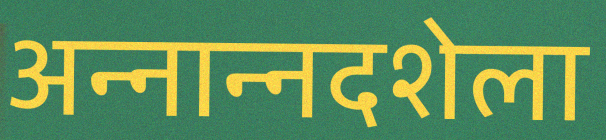
अन्नान्नदशेला